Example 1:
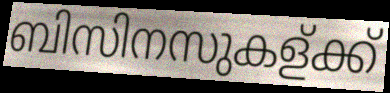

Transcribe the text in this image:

ബിസിനസുകള്ക്ക്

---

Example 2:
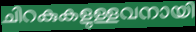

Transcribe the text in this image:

ചിറകുകളുള്ളവനായി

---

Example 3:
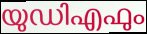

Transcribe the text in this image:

യുഡിഎഫും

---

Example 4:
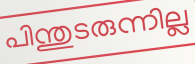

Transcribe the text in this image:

പിന്തുടരുന്നില്ല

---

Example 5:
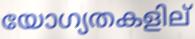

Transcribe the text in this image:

യോഗ്യതകളില്